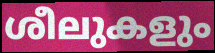
ശീലുകളും